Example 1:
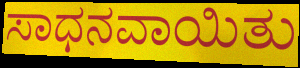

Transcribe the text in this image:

ಸಾಧನವಾಯಿತು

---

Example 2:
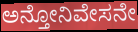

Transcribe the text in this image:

ಅನ್ತೋನಿವೇಸನೇ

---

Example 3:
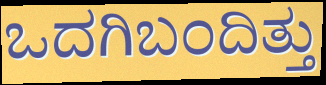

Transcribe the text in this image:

ಒದಗಿಬಂದಿತ್ತು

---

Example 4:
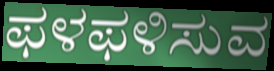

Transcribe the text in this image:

ಫಳಫಳಿಸುವ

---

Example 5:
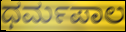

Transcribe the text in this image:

ಧರ್ಮಪಾಲ